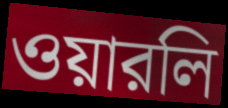
ওয়ারলি